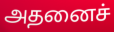
அதனைச்